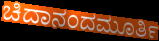
ಚಿದಾನಂದಮೂರ್ತಿ